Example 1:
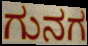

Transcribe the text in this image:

ಗುನಗ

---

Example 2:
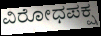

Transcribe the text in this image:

ವಿರೋಧಪಕ್ಷ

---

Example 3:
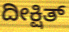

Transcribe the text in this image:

ದೀಕ್ಷಿತ್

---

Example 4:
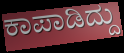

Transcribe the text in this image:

ಕಾಪಾಡಿದ್ದು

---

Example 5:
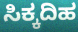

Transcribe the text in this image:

ಸಿಕ್ಕದಿಹ